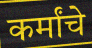
कर्मांचे